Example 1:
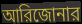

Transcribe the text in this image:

আরিজোনার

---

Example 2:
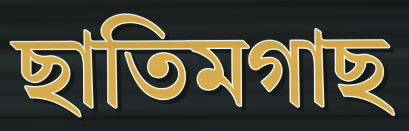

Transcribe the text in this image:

ছাতিমগাছ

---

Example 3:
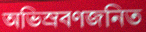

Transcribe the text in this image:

অভিস্রবণজনিত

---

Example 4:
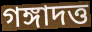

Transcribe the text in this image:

গঙ্গাদত্ত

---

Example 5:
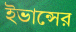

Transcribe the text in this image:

ইভান্সের